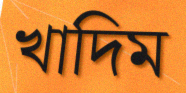
খাদিম